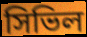
সিভিল